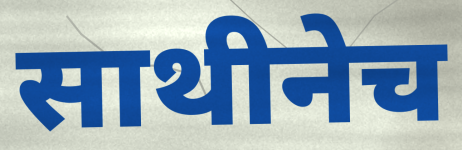
साथीनेच